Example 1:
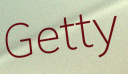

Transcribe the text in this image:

Getty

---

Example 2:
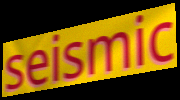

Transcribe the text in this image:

seismic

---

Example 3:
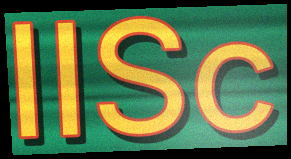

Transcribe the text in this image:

IISc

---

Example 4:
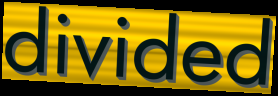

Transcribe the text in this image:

divided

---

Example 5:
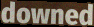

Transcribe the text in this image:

downed